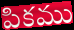
పికము